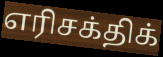
எரிசக்திக்